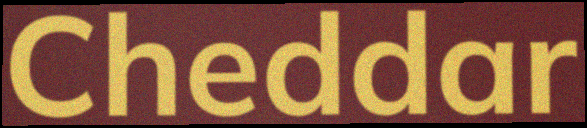
Cheddar